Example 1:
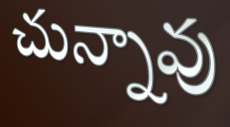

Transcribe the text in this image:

చున్నావు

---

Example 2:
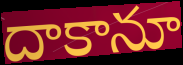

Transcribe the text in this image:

దాకానూ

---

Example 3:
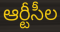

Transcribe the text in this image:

ఆర్టీసీల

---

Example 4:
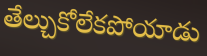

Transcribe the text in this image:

తేల్చుకోలేకపోయాడు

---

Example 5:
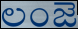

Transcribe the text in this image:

లంజె